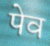
पेव